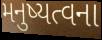
મનુષ્યત્વના